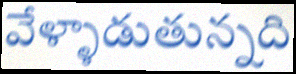
వేళ్ళాడుతున్నది